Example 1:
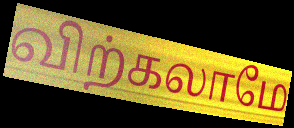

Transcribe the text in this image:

விற்கலாமே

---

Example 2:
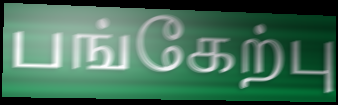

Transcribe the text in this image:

பங்கேற்பு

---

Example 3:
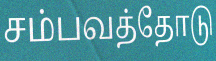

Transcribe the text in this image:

சம்பவத்தோடு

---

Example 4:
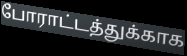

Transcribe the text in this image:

போராட்டத்துக்காக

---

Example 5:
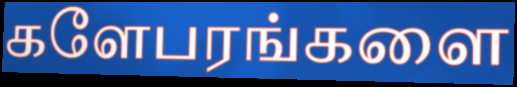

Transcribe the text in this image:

களேபரங்களை